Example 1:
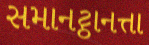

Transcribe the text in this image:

સમાનટ્ઠાનત્તા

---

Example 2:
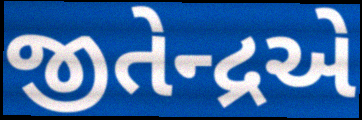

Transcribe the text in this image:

જીતેન્દ્રએ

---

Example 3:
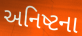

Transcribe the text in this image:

અનિષ્ટના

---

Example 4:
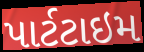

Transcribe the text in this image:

પાર્ટટાઇમ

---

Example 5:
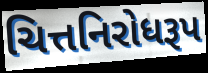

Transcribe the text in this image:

ચિત્તનિરોધરૂપ